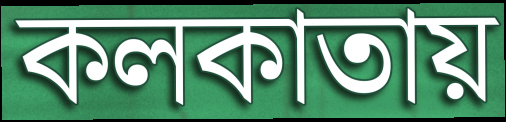
কলকাতায়